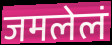
जमलेलं